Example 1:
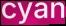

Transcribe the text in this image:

cyan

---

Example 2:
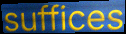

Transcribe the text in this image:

suffices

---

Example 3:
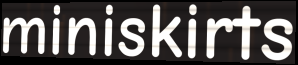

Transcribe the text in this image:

miniskirts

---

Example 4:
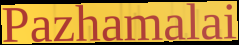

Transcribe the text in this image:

Pazhamalai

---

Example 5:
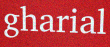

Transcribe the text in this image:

gharial